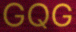
GQG